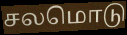
சலமொடு